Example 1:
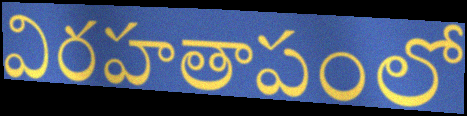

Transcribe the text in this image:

విరహతాపంలో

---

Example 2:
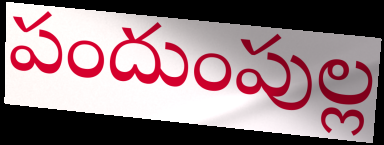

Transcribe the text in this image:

పందుంపుల్ల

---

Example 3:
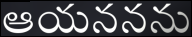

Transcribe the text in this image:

ఆయననను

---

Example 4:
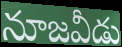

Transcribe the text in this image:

నూజవీడు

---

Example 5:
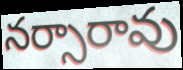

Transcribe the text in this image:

నర్సారావు